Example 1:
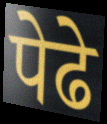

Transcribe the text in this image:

पेढे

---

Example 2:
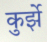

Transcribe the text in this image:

कुर्झे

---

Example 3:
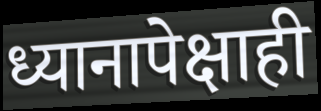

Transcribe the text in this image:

ध्यानापेक्षाही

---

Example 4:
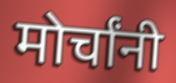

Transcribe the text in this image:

मोर्चांनी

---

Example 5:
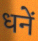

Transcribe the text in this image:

धनें